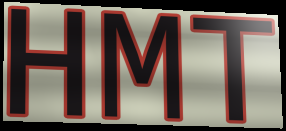
HMT